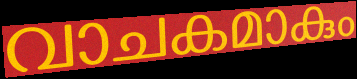
വാചകമാകും